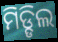
ମିଡ୍ଡିଲ